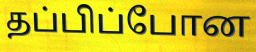
தப்பிப்போன